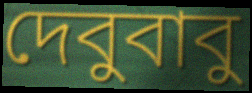
দেবুবাবু